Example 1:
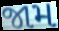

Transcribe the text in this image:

જામ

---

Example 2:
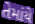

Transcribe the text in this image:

તેમાંયે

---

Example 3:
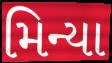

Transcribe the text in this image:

મિન્યા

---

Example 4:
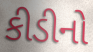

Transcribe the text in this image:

કીડીનો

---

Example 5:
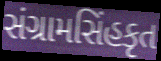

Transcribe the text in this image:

સંગ્રામસિંહકૃત